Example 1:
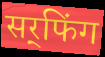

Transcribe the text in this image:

सर्फिंग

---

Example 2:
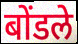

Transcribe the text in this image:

बोंडले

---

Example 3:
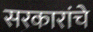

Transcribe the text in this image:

सरकारांचे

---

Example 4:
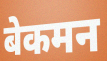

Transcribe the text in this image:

बेकमन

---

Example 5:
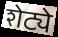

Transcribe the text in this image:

शेट्ये